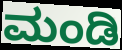
ಮಂಡಿ